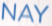
NAY